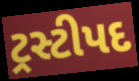
ટ્રસ્ટીપદ